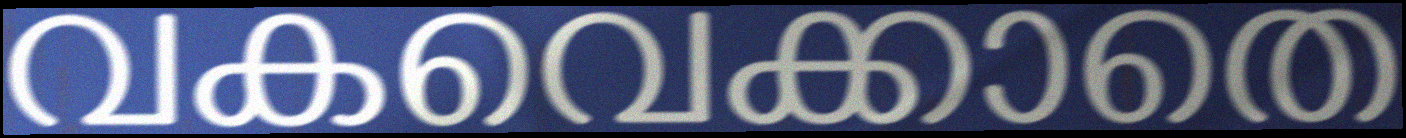
വകവെക്കാതെ